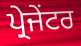
ਪ੍ਰੇਜੇਂਟਰ